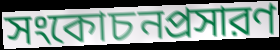
সংকোচনপ্রসারণ